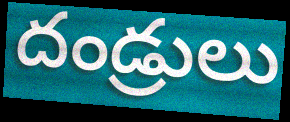
దండ్రులు